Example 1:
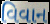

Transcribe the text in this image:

વિવાન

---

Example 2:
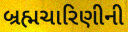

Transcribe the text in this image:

બ્રહ્મચારિણીની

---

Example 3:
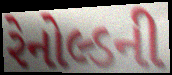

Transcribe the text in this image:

રેનોલ્ડની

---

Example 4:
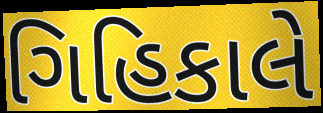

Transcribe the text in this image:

ગિહિકાલે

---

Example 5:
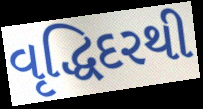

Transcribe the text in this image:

વૃદ્ધિદરથી